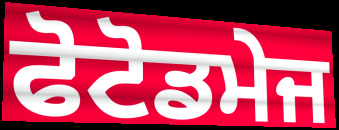
ਫੋਟੋਡਮੇਜ